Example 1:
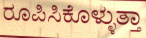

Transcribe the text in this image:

ರೂಪಿಸಿಕೊಳ್ಳುತ್ತಾ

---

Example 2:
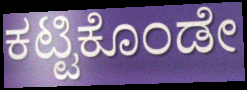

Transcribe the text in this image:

ಕಟ್ಟಿಕೊಂಡೇ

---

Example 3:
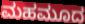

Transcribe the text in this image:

ಮಹಮೂದ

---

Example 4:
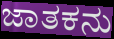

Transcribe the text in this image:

ಜಾತಕನು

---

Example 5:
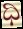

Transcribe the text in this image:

ಧಿ